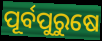
ପୂର୍ବପୁରୁଷେ